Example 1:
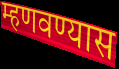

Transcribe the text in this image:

म्हणवण्यास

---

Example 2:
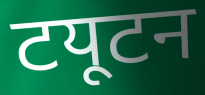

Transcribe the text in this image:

टयूटन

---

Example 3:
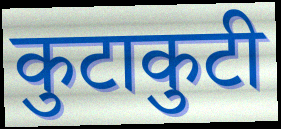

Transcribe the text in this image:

कुटाकुटी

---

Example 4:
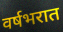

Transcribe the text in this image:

वर्षभरात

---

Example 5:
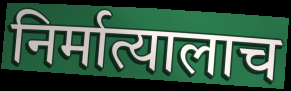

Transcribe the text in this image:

निर्मात्यालाच